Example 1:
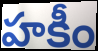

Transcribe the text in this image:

హకీం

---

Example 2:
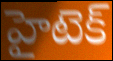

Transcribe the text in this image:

హైటెక్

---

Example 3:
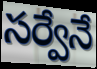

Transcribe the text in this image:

సర్వేనే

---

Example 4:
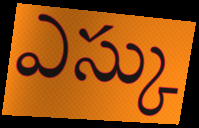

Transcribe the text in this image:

ఎస్కు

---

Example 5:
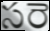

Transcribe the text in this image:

సరె